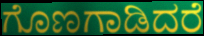
ಗೊಣಗಾಡಿದರೆ